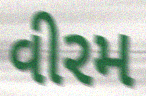
વીરમ